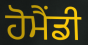
ਹੋਮੈਂਡੀ